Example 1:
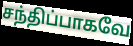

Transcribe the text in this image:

சந்திப்பாகவே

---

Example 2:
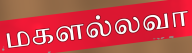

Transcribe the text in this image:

மகளல்லவா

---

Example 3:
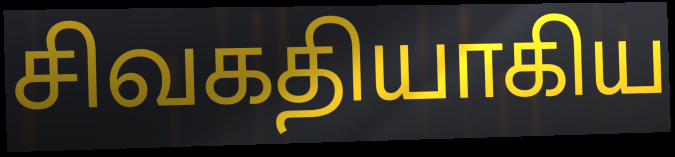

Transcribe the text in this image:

சிவகதியாகிய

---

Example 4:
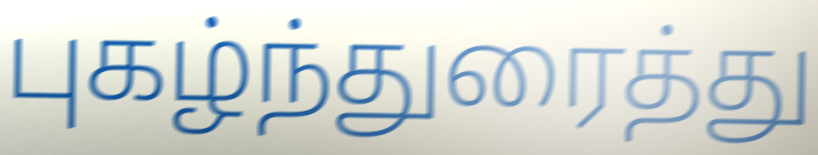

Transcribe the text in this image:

புகழ்ந்துரைத்து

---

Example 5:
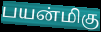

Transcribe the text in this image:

பயன்மிகு